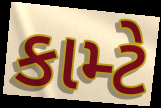
કામ્ટે